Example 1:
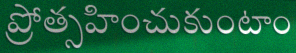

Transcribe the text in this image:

ప్రోత్సహించుకుంటాం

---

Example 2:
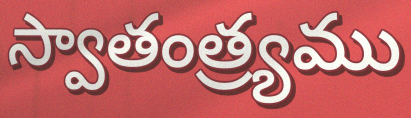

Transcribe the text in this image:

స్వాతంత్ర్యము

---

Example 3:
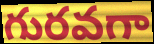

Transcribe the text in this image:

గురవగా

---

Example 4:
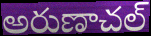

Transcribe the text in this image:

అరుణాచల్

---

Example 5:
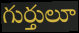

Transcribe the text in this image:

గుర్తులూ